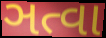
ઞત્વા